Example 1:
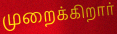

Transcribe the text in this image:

முறைக்கிறார்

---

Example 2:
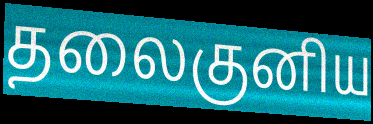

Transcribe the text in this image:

தலைகுனிய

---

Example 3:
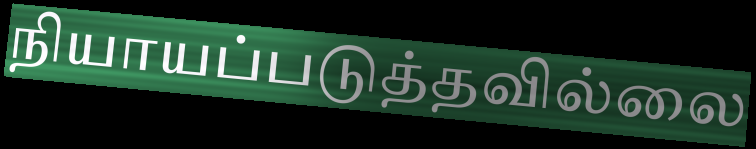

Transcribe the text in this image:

நியாயப்படுத்தவில்லை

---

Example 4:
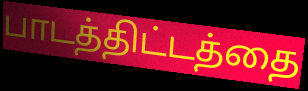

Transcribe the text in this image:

பாடத்திட்டத்தை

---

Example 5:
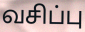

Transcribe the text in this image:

வசிப்பு